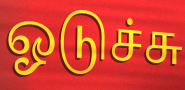
ஓடுச்சு